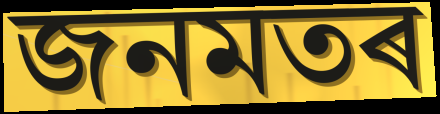
জনমতৰ